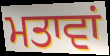
ਮਤਾਵਾਂ